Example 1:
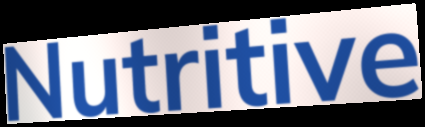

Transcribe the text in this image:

Nutritive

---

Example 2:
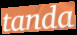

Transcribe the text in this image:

tanda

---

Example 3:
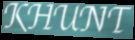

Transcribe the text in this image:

KHUNT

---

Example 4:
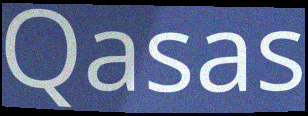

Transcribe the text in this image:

Qasas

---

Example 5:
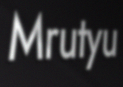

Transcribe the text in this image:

Mrutyu